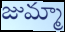
జుమ్మా